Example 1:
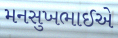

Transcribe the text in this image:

મનસુખભાઈએ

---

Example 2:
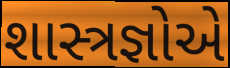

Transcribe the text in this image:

શાસ્ત્રજ્ઞોએ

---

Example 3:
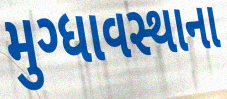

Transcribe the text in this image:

મુગ્ધાવસ્થાના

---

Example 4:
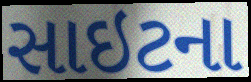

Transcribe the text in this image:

સાઇટના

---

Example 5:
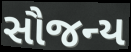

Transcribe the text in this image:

સૌજન્ય